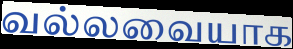
வல்லவையாக